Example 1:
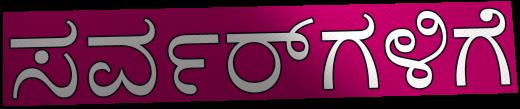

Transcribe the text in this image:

ಸರ್ವರ್‌ಗಳಿಗೆ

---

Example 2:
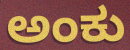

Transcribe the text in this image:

ಅಂಕು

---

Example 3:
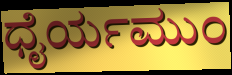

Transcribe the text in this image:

ಧೈರ್ಯಮುಂ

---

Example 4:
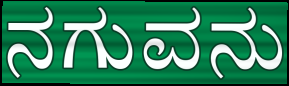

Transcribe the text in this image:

ನಗುವನು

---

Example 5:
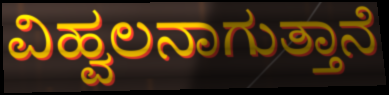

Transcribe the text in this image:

ವಿಹ್ವಲನಾಗುತ್ತಾನೆ